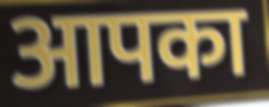
आपका